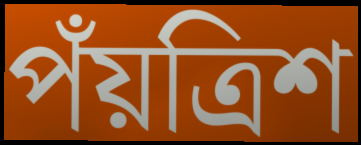
পঁয়ত্রিশ